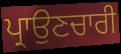
ਪ੍ਰਾਉਣਚਾਰੀ